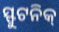
ସ୍ଫୁଟନିକ୍